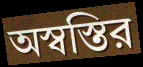
অস্বস্তির